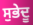
ਸੁਭੇਦੂ